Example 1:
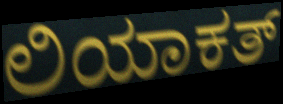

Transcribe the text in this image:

ಲಿಯಾಕತ್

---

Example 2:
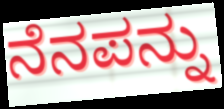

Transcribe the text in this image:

ನೆನಪನ್ನು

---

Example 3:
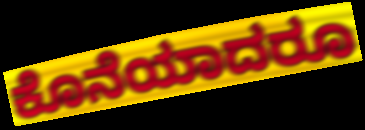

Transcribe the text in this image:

ಕೊನೆಯಾದರೂ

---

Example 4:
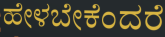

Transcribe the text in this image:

ಹೇಳಬೇಕೆಂದರೆ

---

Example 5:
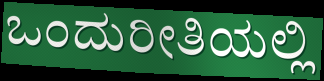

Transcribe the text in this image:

ಒಂದುರೀತಿಯಲ್ಲಿ